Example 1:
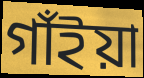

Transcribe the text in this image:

গাঁইয়া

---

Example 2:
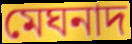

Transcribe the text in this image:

মেঘনাদ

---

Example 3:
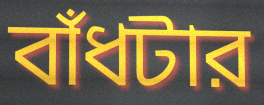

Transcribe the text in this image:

বাঁধটার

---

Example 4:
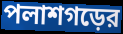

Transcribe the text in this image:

পলাশগড়ের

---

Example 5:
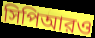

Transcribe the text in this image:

সিপিআরও